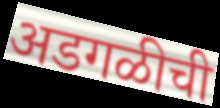
अडगळीची